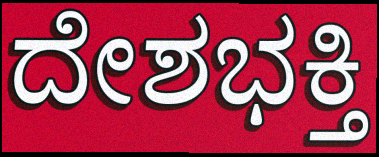
ದೇಶಭಕ್ತಿ